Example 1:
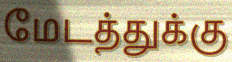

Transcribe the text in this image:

மேடத்துக்கு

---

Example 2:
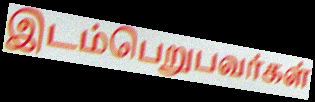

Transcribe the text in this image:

இடம்பெறுபவர்கள்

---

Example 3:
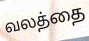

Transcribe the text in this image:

வலத்தை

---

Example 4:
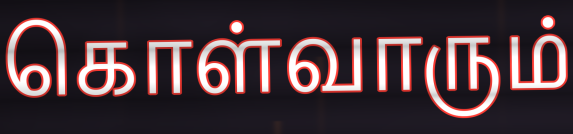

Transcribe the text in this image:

கொள்வாரும்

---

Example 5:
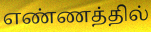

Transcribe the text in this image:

எண்ணத்தில்